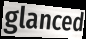
glanced